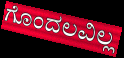
ಗೊಂದಲವಿಲ್ಲ